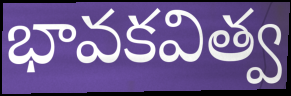
భావకవిత్వ